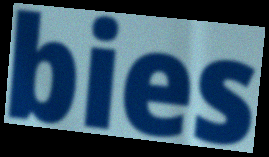
bies